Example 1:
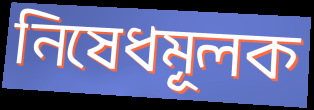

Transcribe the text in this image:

নিষেধমূলক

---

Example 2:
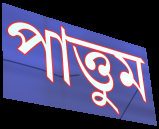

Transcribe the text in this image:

পাত্তুম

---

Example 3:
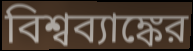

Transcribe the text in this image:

বিশ্বব্যাঙ্কের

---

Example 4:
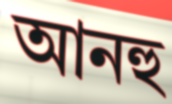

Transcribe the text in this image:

আনহু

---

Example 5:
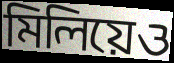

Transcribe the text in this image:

মিলিয়েও